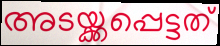
അടയ്ക്കപ്പെട്ടത്